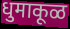
धुमाकूळ